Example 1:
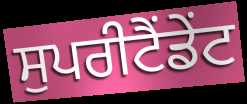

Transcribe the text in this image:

ਸੁਪਰੀਟੈਂਡੇਂਟ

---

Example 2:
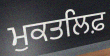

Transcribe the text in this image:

ਮੁਕਤਲਿਫ਼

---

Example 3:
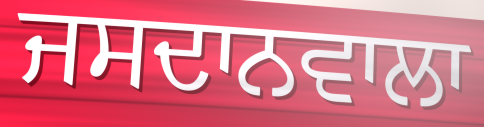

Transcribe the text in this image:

ਜਸਦਾਨਵਾਲਾ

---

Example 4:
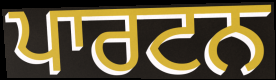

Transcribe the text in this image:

ਪਾਰਟਨ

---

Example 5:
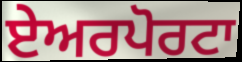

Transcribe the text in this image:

ਏਅਰਪੋਰਟਾ